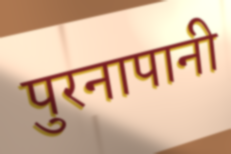
पुरनापानी